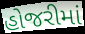
હોજરીમાં